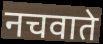
नचवाते